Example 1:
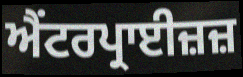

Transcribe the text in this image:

ਐਂਟਰਪ੍ਰਾਈਜ਼ਜ਼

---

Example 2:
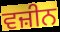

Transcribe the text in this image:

ਵਜ਼ੀਨ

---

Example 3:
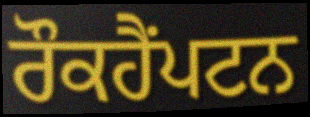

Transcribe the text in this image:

ਰੌਕਹੈਂਪਟਨ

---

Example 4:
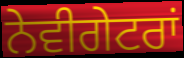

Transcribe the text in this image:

ਨੇਵੀਗੇਟਰਾਂ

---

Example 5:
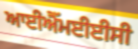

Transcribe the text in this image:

ਆਈਐੱਮਈਈਸੀ